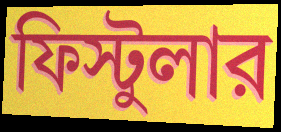
ফিস্টুলার